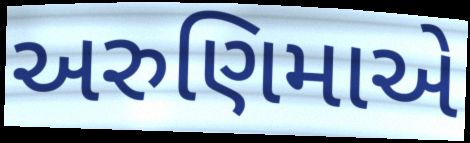
અરુણિમાએ